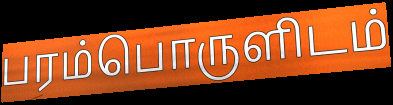
பரம்பொருளிடம்